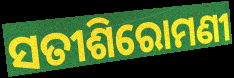
ସତୀଶିରୋମଣୀ